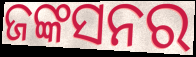
ଜଙ୍କସନର